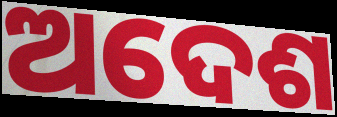
ଅଦେଶ